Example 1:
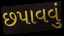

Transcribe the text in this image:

છપાવવું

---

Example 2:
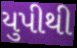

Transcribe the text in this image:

યુપીથી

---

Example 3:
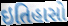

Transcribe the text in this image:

ઇતિહાસો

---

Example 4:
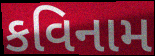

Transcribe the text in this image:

કવિનામ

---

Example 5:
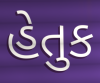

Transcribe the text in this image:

હેતુક